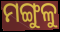
ମଙ୍ଗୁଳୁ